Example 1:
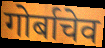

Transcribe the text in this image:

गोर्बाचेव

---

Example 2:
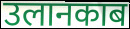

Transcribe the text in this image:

उलानकाब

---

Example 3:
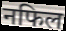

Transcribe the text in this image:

नफिल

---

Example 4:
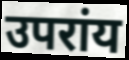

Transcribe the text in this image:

उपरांय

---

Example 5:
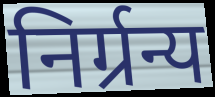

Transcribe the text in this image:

निर्ग्रन्य